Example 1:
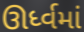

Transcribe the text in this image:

ઊર્ધ્વમાં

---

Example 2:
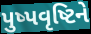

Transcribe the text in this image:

પુષ્પવૃષ્ટિને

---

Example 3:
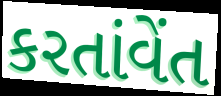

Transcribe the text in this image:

કરતાંવેંત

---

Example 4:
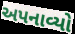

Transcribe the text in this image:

અપનાવ્યો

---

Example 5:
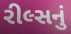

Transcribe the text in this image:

રીલ્સનું